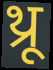
थ्रू